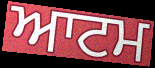
ਆਟਮ